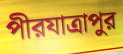
পীরযাত্রাপুর